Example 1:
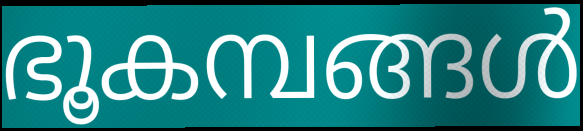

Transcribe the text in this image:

ഭൂകമ്പങ്ങൾ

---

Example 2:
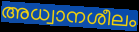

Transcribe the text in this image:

അധ്വാനശീലം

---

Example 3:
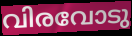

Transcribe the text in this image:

വിരവോടു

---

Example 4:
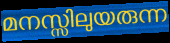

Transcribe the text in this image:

മനസ്സിലുയരുന്ന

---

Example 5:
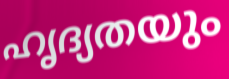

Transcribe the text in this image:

ഹൃദ്യതയും